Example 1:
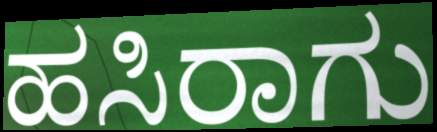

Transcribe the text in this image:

ಹಸಿರಾಗು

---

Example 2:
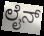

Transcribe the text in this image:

ಲೈನ್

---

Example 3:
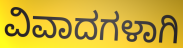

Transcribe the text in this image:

ವಿವಾದಗಳಾಗಿ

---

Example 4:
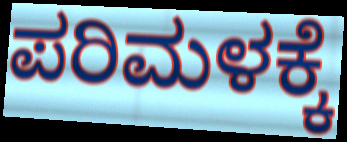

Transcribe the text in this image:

ಪರಿಮಳಕ್ಕೆ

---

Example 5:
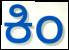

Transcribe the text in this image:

ಕಿಂ